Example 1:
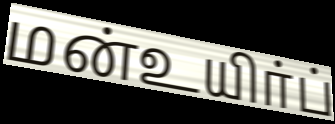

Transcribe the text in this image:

மன்உயிர்ப்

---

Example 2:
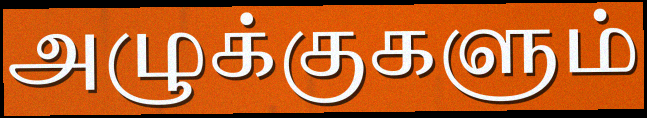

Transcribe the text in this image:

அழுக்குகளும்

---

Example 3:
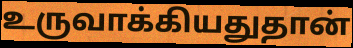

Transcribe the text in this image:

உருவாக்கியதுதான்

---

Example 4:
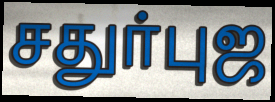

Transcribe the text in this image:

சதுர்புஜ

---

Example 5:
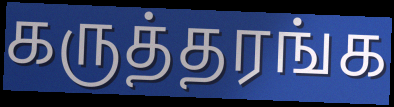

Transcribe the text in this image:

கருத்தரங்க